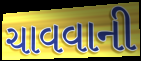
ચાવવાની